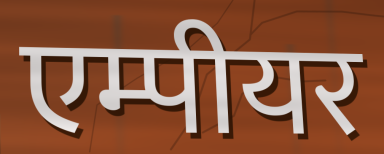
एम्पीयर